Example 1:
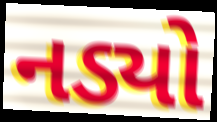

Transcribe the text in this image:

નડ્યો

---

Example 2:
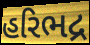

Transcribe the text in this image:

હરિભદ્ર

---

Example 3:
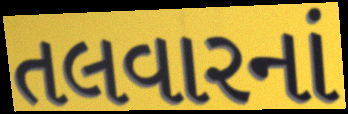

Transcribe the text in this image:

તલવારનાં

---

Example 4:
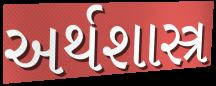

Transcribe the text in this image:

અર્થશાસ્ત્ર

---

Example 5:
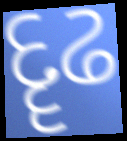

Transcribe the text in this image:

દૄઢ